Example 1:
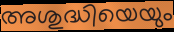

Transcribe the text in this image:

അശുദ്ധിയെയും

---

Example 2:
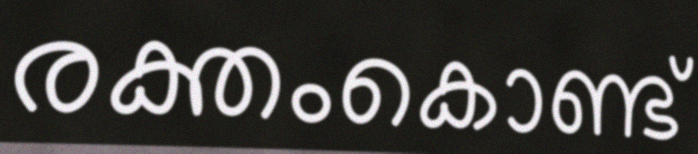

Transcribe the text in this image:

രക്തംകൊണ്ട്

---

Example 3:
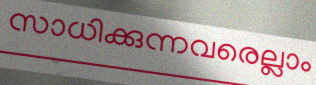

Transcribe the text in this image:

സാധിക്കുന്നവരെല്ലാം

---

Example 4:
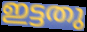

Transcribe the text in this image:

ഇട്ടതു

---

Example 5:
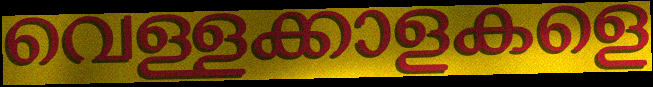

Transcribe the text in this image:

വെള്ളക്കാളകളെ